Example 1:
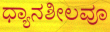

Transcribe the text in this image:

ಧ್ಯಾನಶೀಲವೂ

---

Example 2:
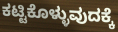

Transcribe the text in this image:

ಕಟ್ಟಿಕೊಳ್ಳುವುದಕ್ಕೆ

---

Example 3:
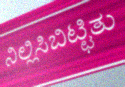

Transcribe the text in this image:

ನಿಲ್ಲಿಸಿಬಿಟ್ಟಿತು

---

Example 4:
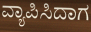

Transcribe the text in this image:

ವ್ಯಾಪಿಸಿದಾಗ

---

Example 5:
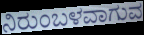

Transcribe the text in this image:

ನಿರುಂಬಳವಾಗುವ